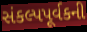
સંકલ્પપૂર્વકની